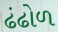
ઢંઢોળ